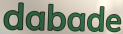
dabade